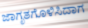
ಜಾಗೃತಗೊಳಿಸಿದಾಗ